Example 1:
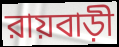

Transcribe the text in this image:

রায়বাড়ী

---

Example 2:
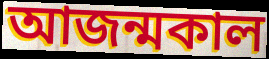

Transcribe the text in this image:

আজন্মকাল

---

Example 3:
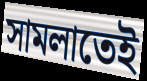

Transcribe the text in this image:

সামলাতেই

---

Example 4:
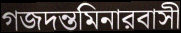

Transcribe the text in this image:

গজদন্তমিনারবাসী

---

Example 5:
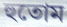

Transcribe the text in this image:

হুতোম